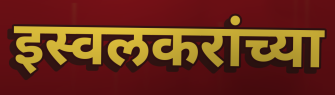
इस्वलकरांच्या